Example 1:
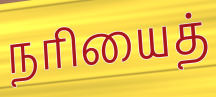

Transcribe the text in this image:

நரியைத்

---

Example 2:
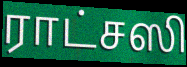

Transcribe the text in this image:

ராட்சஸி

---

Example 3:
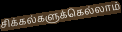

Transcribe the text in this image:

சிக்கல்களுக்கெல்லாம்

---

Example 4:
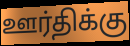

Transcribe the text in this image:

ஊர்திக்கு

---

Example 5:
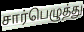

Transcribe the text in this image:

சார்பெழுத்து